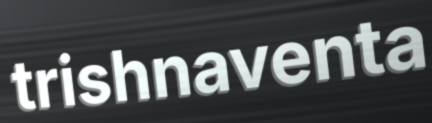
trishnaventa